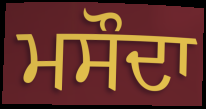
ਮਸੌਦਾ